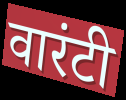
वारंटी